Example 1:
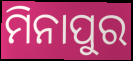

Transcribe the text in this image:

ମିନାପୁର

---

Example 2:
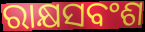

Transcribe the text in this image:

ରାକ୍ଷସବଂଶ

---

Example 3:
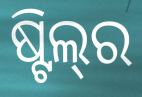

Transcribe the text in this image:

ଷ୍ଟିଲ୍‌ର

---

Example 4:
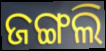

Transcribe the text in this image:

ଜଙ୍ଗଲି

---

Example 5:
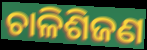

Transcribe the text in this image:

ଚାଳିଶିଜଣ